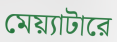
মেয়্যাটারে